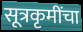
सूत्रकृमींचा